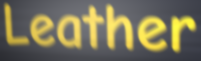
Leather